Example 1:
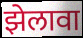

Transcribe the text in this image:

झेलावा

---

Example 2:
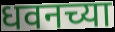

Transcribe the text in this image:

धवनच्या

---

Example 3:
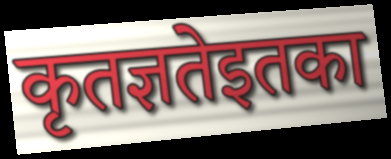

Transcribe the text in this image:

कृतज्ञतेइतका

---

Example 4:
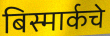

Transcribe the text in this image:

बिस्मार्कचे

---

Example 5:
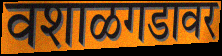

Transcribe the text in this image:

वशाळगडावर